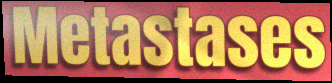
Metastases